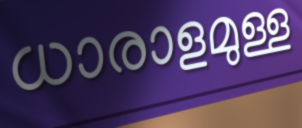
ധാരാളമുള്ള